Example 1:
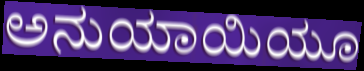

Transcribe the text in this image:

ಅನುಯಾಯಿಯೂ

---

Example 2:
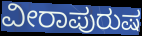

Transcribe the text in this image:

ವೀರಾಪುರುಷ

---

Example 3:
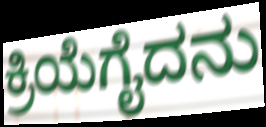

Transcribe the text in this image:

ಕ್ರಿಯೆಗೈದನು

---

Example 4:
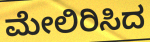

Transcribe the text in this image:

ಮೇಲಿರಿಸಿದ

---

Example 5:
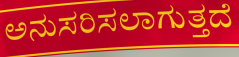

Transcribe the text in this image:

ಅನುಸರಿಸಲಾಗುತ್ತದೆ